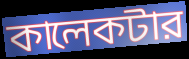
কালেকটার